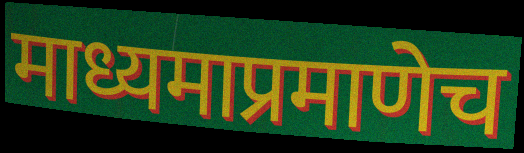
माध्यमाप्रमाणेच